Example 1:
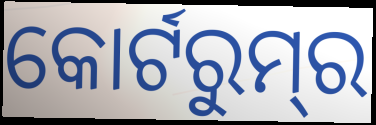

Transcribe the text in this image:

କୋର୍ଟରୁମ୍‌ର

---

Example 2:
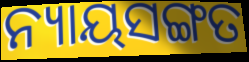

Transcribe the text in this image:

ନ୍ୟାୟସଙ୍ଗତ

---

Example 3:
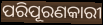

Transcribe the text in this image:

ପରିପୂରଣକାରୀ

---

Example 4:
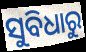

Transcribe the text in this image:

ସୁବିଧାରୁ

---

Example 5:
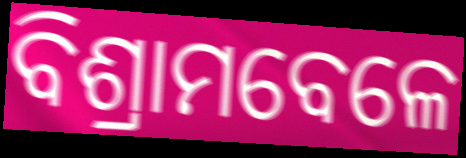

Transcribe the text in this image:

ବିଶ୍ରାମବେଳେ